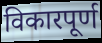
विकारपूर्ण